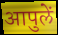
आपुलें